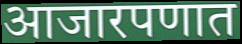
आजारपणात